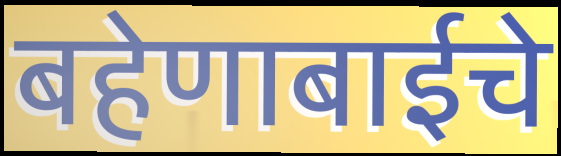
बहेणाबाईचे